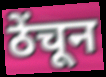
ठेंचून